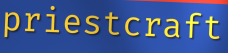
priestcraft